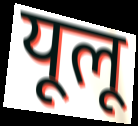
यूलू